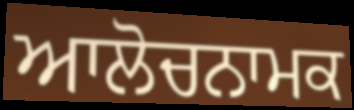
ਆਲੋਚਨਾਮਕ